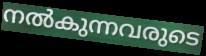
നൽകുന്നവരുടെ